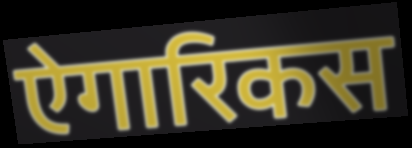
ऐगारिकस